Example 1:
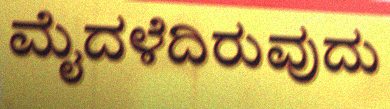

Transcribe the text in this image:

ಮೈದಳೆದಿರುವುದು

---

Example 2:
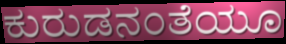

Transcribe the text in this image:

ಕುರುಡನಂತೆಯೂ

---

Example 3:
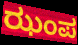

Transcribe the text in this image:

ಝಂಪ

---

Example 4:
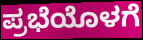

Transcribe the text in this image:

ಪ್ರಭೆಯೊಳಗೆ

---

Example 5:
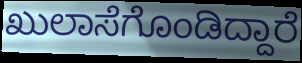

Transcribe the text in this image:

ಖುಲಾಸೆಗೊಂಡಿದ್ದಾರೆ